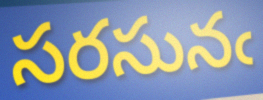
సరసునఁ